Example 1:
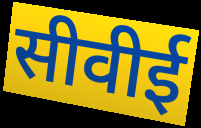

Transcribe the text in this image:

सीवीई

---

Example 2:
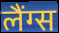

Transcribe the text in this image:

लैंग्स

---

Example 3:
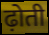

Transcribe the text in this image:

ढ़ोती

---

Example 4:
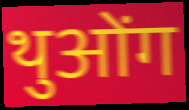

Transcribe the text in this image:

थुओंग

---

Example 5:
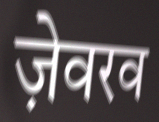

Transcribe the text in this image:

ज़ेवरव